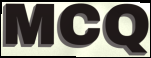
MCQ